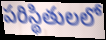
పరిస్థితులలో